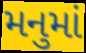
મનુમાં